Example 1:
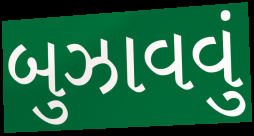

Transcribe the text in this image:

બુઝાવવું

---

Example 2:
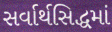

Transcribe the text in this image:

સર્વાર્થસિદ્ધમાં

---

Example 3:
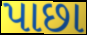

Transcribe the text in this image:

પાછા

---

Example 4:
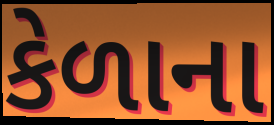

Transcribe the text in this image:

કેળાના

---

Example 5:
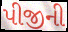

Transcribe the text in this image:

પીજીની